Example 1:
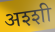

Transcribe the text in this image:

अश्शी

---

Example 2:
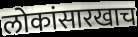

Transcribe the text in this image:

लोकांसारखाच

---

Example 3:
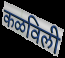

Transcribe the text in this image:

कळविली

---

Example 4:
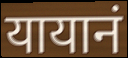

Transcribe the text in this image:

यायानं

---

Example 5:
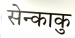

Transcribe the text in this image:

सेन्काकु